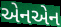
એનએન